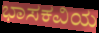
ಭಾಸಕವಿಯ